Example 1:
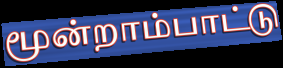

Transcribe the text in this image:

மூன்றாம்பாட்டு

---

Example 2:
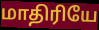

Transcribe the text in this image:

மாதிரியே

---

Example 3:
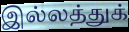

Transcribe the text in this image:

இல்லத்துக்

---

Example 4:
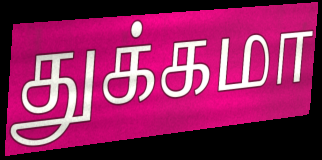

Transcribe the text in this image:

துக்கமா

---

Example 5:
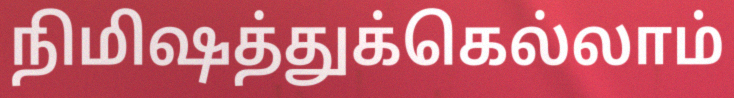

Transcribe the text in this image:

நிமிஷத்துக்கெல்லாம்